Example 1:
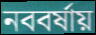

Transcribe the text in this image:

নববর্ষায়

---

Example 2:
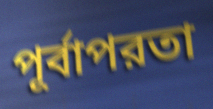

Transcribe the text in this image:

পূর্বাপরতা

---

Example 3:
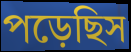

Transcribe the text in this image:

পড়েছিস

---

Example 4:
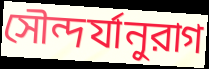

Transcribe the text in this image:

সৌন্দর্যানুরাগ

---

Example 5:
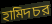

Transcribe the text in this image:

হামিদচর